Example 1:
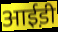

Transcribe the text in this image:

आई़डी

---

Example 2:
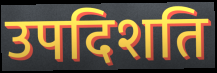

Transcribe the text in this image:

उपदिशति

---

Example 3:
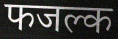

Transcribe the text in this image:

फजल्क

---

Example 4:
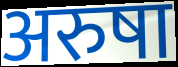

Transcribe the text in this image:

अरुषा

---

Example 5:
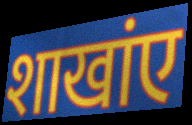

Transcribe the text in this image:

शाखांए